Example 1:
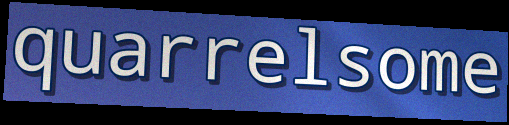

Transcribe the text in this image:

quarrelsome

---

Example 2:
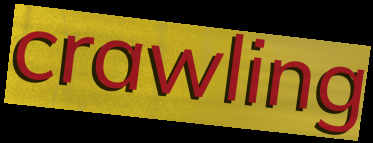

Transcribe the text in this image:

crawling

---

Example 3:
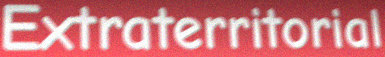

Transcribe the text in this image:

Extraterritorial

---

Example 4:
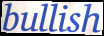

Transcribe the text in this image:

bullish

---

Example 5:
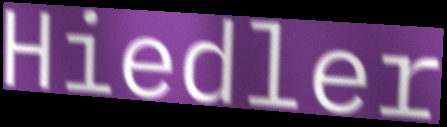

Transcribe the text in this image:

Hiedler